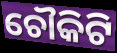
ଚୌକିଟି